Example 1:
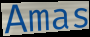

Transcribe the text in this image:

Amas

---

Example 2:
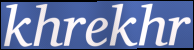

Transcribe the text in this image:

khrekhr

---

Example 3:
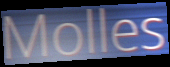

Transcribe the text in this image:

Molles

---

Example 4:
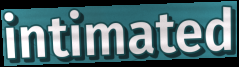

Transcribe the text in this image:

intimated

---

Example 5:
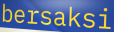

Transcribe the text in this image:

bersaksi